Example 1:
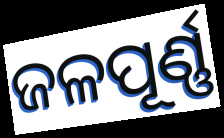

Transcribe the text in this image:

ଜଳପୂର୍ଣ୍ଣ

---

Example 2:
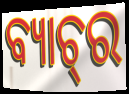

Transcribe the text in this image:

ବ୍ୟାଚ୍‌ର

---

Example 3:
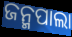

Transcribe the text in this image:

ଜନ୍ମପାଲା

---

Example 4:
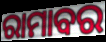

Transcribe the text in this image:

ରାମାବର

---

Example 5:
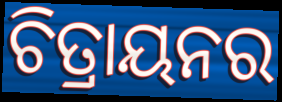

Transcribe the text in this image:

ଚିତ୍ରାୟନର